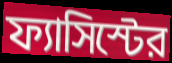
ফ্যাসিস্টের